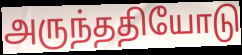
அருந்ததியோடு